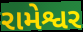
રામેશ્વર